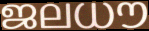
ജലധൗ